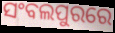
ସଂବଲପୁରରେ